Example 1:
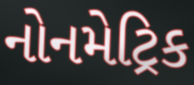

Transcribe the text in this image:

નોનમેટ્રિક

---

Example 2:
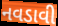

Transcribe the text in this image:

નવડાવી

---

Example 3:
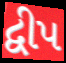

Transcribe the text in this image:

દ્વીપ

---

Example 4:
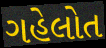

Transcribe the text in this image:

ગહેલોત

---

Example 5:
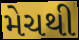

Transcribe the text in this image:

મેચથી